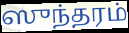
ஸுந்தரம்